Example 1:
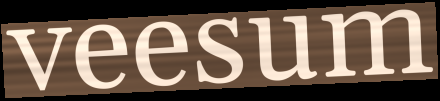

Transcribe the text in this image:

veesum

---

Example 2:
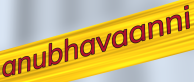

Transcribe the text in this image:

anubhavaanni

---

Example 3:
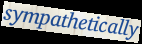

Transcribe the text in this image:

sympathetically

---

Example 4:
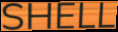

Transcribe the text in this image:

SHELL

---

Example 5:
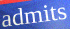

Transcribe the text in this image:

admits